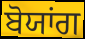
ਬੋਯਾਂਗ